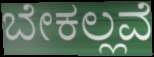
ಬೇಕಲ್ಲವೆ